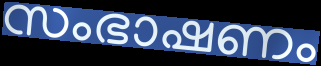
സംഭാഷണം